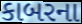
કાબરના